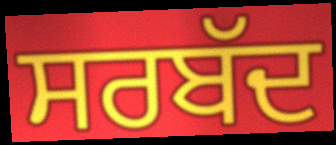
ਸਰਬੱਦ